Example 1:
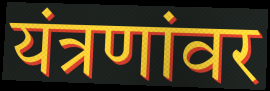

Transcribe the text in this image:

यंत्रणांवर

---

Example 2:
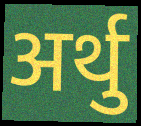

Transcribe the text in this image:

अर्थु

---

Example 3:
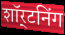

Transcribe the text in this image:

शॉर्टनिंग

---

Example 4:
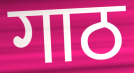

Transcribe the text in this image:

गाठ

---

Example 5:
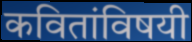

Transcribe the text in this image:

कवितांविषयी